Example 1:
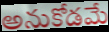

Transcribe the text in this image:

అనుకోడమే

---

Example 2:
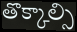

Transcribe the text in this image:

తొక్కాల్సి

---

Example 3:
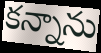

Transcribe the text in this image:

కన్నాను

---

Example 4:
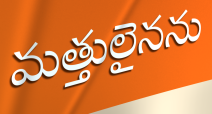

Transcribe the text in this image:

మత్తులైనను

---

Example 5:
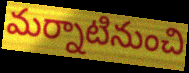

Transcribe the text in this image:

మర్నాటినుంచి